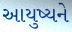
આયુષ્યને